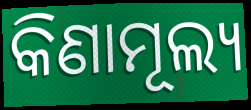
କିଣାମୂଲ୍ୟ